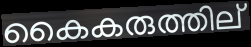
കൈകരുത്തില്